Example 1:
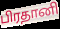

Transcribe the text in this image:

பிரதானி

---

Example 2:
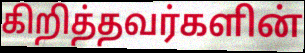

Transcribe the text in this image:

கிறித்தவர்களின்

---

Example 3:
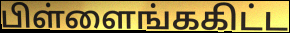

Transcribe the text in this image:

பிள்ளைங்ககிட்ட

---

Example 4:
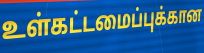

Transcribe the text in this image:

உள்கட்டமைப்புக்கான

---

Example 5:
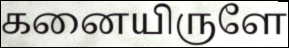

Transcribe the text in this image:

கனையிருளே